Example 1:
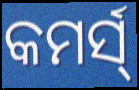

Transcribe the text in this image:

କମର୍ସ୍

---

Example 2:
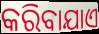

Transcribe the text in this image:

କରିବାଯାଏ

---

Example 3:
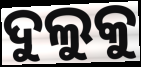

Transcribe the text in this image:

ଦୁଲୁକୁ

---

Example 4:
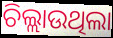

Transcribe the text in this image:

ଚିଲ୍ଲାଉଥିଲା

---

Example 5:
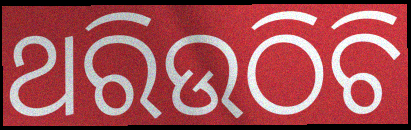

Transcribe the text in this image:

ଥରିଉଠିଚି